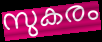
സുകരം